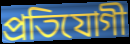
প্ৰতিযোগী